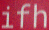
ifh